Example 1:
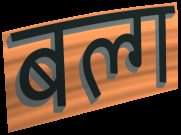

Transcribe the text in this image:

बल्ग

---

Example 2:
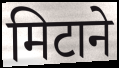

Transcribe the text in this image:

मिटाने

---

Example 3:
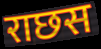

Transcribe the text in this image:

राछस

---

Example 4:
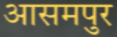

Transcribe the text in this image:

आसमपुर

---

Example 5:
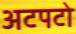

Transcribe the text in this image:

अटपटो